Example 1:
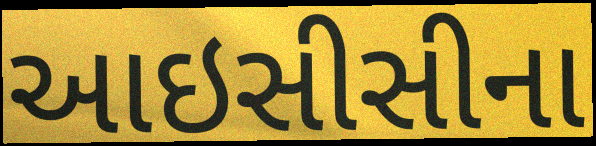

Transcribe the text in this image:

આઇસીસીના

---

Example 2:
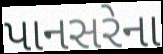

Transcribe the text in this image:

પાનસરેના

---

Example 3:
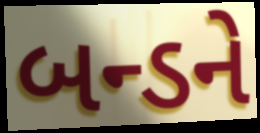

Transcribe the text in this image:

બન્ડને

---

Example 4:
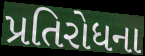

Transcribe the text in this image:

પ્રતિરોધના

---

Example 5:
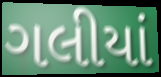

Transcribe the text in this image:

ગલીયાં